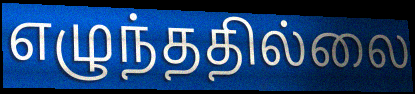
எழுந்ததில்லை